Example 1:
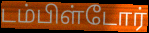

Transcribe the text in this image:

டம்பிள்டோர்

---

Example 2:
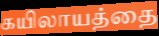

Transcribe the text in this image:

கயிலாயத்தை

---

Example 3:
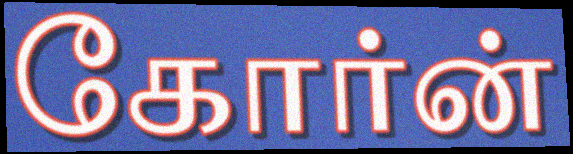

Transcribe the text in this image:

கோர்ன்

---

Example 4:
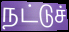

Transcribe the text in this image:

நட்டுச்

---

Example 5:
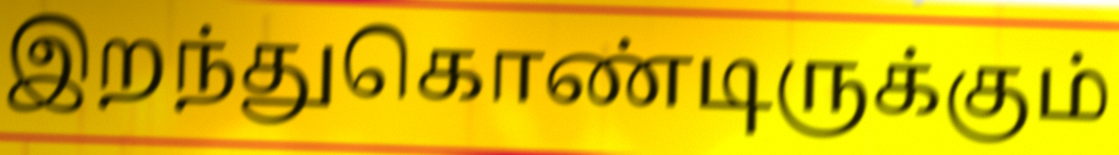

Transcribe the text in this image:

இறந்துகொண்டிருக்கும்